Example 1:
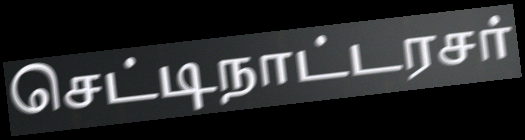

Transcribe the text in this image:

செட்டிநாட்டரசர்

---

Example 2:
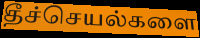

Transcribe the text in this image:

தீச்செயல்களை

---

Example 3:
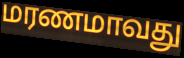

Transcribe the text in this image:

மரணமாவது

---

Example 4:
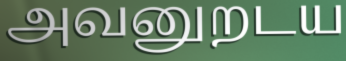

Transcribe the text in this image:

அவனுறடய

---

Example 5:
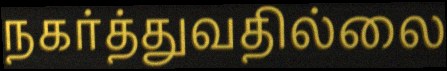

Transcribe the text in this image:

நகர்த்துவதில்லை